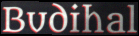
Budihal